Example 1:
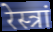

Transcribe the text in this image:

रेस्त्रां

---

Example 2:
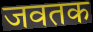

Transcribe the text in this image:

जवतक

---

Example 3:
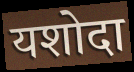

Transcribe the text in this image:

यशोदा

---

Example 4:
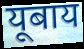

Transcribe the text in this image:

यूबाय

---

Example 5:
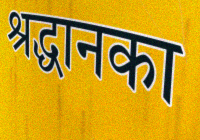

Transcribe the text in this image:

श्रद्धानका